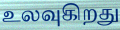
உலவுகிறது